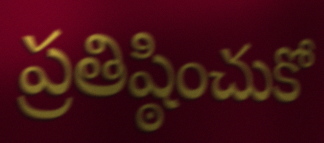
ప్రతిష్ఠించుకో